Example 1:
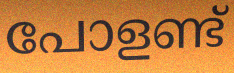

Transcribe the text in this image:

പോളണ്ട്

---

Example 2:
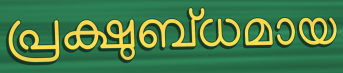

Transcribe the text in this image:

പ്രക്ഷുബ്ധമായ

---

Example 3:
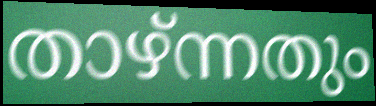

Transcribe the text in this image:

താഴ്ന്നതും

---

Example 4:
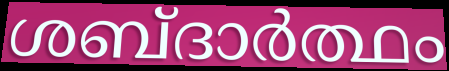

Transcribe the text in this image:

ശബ്ദാർത്ഥം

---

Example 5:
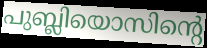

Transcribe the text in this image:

പുബ്ലിയൊസിന്റെ